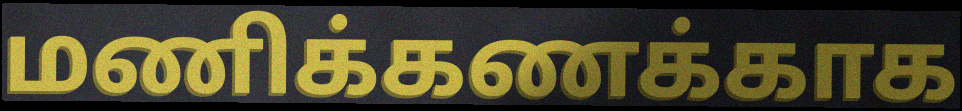
மணிக்கணக்காக